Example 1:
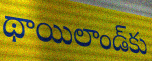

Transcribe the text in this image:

థాయిలాండ్‌కు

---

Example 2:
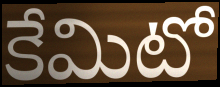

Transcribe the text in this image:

కేమిటో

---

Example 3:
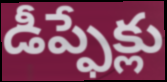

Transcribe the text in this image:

డీప్ఫేక్లు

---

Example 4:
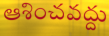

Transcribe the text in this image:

ఆశించవద్దు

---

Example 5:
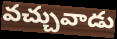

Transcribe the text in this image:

వచ్చువాడు